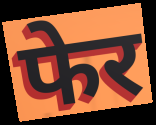
फेर